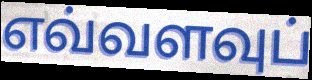
எவ்வளவுப்